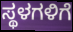
ಸ್ಥಳಗಳಿಗೆ